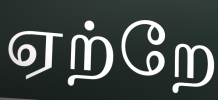
ஏற்றே